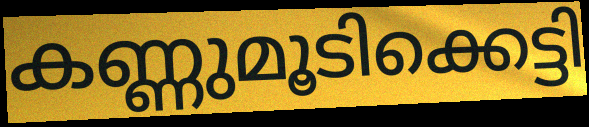
കണ്ണുമൂടിക്കെട്ടി